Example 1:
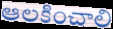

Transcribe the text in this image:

ఆలకించాలి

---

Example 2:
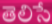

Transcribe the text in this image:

తెలిసే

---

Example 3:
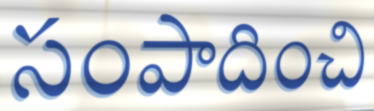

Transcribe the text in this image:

సంపాదించి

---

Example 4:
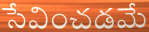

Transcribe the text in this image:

సేవించడమే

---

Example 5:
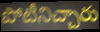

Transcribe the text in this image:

పోటీనిచ్చారు